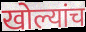
खोल्यांच